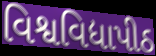
વિશ્વવિદ્યાપીઠ